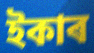
ইকাৰ